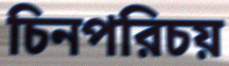
চিনপরিচয়